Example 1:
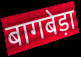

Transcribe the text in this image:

बागबेड़ा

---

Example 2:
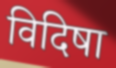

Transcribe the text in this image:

विदिषा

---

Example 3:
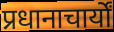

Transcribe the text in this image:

प्रधानाचार्यों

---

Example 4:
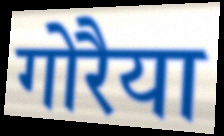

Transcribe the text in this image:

गोरैया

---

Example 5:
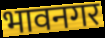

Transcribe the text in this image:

भावनगर